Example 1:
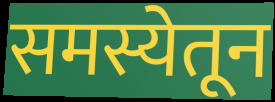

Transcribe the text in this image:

समस्येतून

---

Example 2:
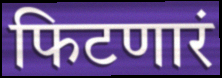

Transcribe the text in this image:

फिटणारं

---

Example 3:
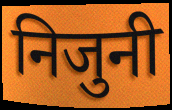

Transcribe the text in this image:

निजुनी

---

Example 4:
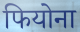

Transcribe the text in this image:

फियोना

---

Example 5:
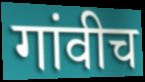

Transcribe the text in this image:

गांवीच